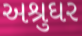
અશ્રુઘર